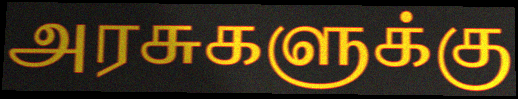
அரசுகளுக்கு